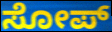
ಸೋಪ್